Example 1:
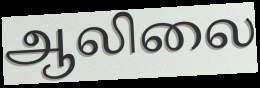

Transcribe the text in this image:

ஆலிலை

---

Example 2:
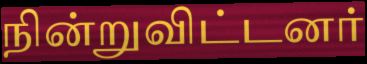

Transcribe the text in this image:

நின்றுவிட்டனர்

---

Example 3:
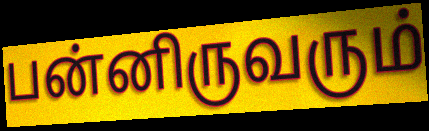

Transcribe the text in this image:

பன்னிருவரும்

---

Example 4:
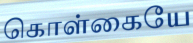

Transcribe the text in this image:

கொள்கையே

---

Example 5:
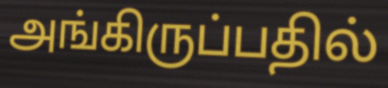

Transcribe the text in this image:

அங்கிருப்பதில்